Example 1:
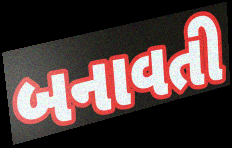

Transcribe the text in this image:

બનાવતી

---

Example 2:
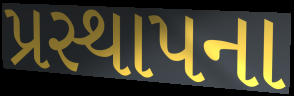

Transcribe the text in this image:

પ્રસ્થાપના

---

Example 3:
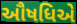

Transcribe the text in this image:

ઔષધિએ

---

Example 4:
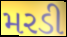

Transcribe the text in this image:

મરડી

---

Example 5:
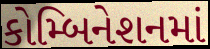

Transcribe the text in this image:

કોમ્બિનેશનમાં